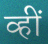
व्हीं